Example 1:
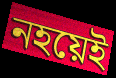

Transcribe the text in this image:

নহয়েই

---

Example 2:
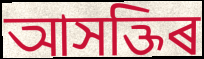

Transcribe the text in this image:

আসক্তিৰ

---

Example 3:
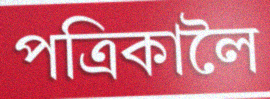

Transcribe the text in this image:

পত্ৰিকালৈ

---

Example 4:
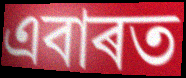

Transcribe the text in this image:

এবাৰত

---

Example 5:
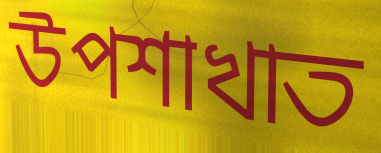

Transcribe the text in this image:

উপশাখাত